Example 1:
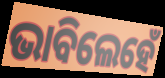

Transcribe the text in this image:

ଭାବିଲେହେଁ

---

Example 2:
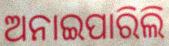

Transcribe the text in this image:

ଅନାଇପାରିଲି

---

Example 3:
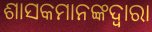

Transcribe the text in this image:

ଶାସକମାନଙ୍କଦ୍ୱାରା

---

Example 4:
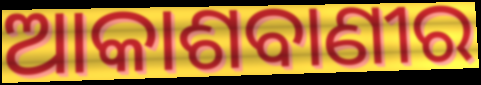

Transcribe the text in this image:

ଆକାଶବାଣୀର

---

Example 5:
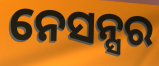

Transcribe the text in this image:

ନେସନ୍ସର